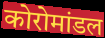
कोरोमांडल